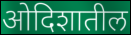
ओदिशातील